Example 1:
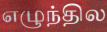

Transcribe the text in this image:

எழுந்தில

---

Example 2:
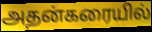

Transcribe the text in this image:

அதன்கரையில்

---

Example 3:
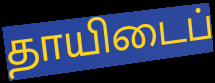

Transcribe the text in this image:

தாயிடைப்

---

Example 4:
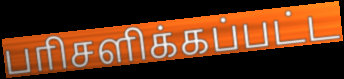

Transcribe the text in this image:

பரிசளிக்கப்பட்ட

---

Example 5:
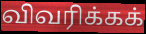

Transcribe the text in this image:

விவரிக்கக்